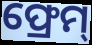
ଫ୍ରେମ୍